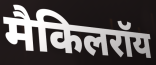
मैकिलरॉय